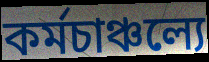
কর্মচাঞ্চল্যে